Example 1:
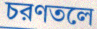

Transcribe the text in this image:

চরণতলে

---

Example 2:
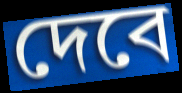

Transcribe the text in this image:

দেবে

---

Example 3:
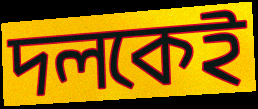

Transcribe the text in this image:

দলকেই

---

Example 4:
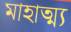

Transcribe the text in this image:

মাহাত্ম্য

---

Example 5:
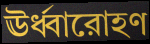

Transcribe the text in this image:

ঊর্ধ্বারোহণ